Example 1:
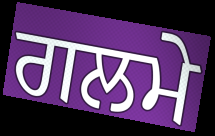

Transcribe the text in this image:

ਗਲਮੇ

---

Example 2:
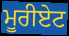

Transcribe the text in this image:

ਮੂਰੀਏਟ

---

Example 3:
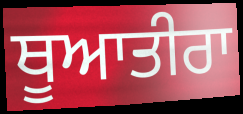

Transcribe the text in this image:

ਥੂਆਤੀਰਾ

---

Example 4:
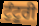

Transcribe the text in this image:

ਟੁੰਟੂਰੀ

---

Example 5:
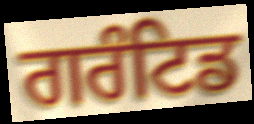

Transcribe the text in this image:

ਗਰੰਟਿਡ